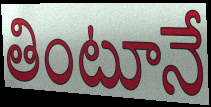
తింటూనే